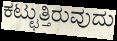
ಕಟ್ಟುತ್ತಿರುವುದು